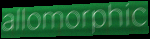
allomorphic